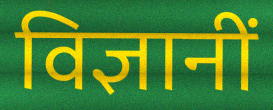
विज्ञानीं